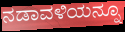
ನಡಾವಳಿಯನ್ನೂ